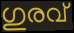
ഗുരവ്